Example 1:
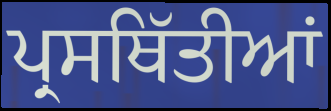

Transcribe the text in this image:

ਪ੍ਰਸਥਿੱਤੀਆਂ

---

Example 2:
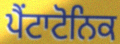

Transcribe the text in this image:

ਪੈਂਟਾਟੋਨਿਕ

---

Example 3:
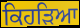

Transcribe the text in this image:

ਕਿਹੜਿਆ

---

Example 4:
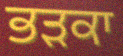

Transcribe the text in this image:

ਭੜਕਾ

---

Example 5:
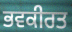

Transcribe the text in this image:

ਭਵਕੀਰਤ